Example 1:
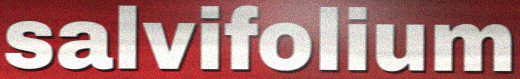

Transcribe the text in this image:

salvifolium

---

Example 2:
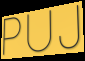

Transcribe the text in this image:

PUJ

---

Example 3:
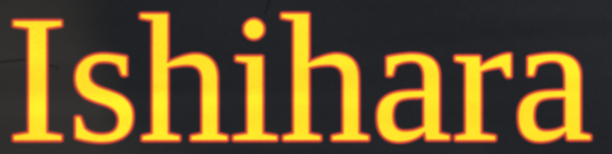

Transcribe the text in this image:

Ishihara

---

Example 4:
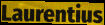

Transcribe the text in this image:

Laurentius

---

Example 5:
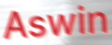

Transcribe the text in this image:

Aswin